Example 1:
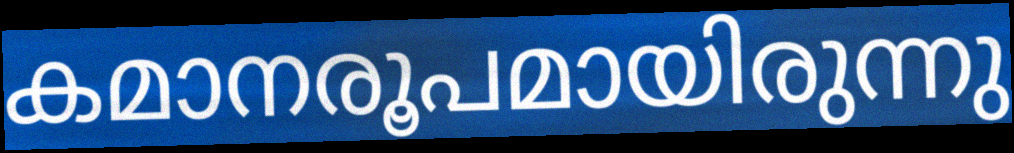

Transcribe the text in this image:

കമാനരൂപമായിരുന്നു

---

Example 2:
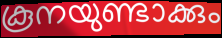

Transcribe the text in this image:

കൂനയുണ്ടാക്കും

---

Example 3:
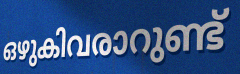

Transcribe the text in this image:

ഒഴുകിവരാറുണ്ട്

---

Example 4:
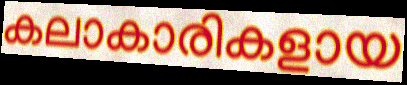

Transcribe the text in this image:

കലാകാരികളായ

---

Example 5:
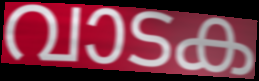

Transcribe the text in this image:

വാടക